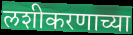
लशीकरणाच्या